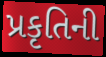
પ્રકૃતિની